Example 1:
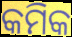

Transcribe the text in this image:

କମିକ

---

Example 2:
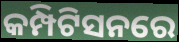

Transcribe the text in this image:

କମ୍ପିଟିସନରେ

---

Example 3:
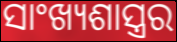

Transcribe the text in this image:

ସାଂଖ୍ୟଶାସ୍ତ୍ରର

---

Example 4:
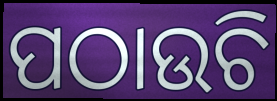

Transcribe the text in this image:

ପଠାଉଚି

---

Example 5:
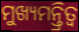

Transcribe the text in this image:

ମୁଖ୍ୟମନ୍ତ୍ରିତ୍ବ